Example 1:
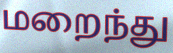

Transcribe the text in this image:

மறைந்து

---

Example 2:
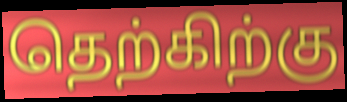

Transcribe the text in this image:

தெற்கிற்கு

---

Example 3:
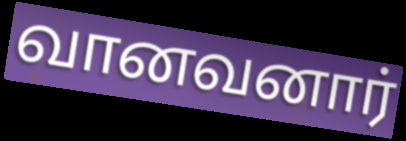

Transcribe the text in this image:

வானவனார்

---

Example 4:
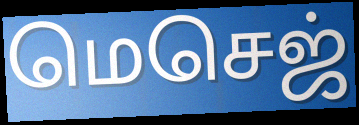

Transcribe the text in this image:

மெசெஜ்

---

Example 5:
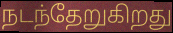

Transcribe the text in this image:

நடந்தேறுகிறது